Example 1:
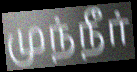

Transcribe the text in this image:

முந்நீர்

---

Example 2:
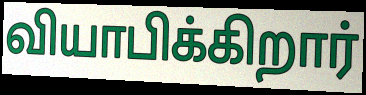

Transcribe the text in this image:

வியாபிக்கிறார்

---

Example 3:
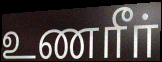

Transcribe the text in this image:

உணரீர்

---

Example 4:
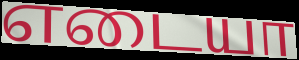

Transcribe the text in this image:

எடையா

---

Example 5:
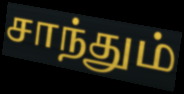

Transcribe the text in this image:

சாந்தும்